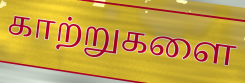
காற்றுகளை